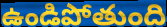
ఉండిపోతుంది